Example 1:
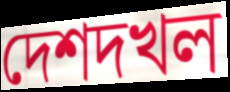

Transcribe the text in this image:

দেশদখল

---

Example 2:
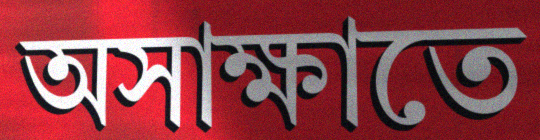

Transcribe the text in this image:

অসাক্ষাতে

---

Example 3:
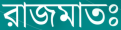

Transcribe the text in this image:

রাজমাতঃ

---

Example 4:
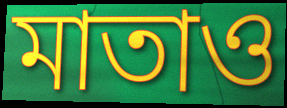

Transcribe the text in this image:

মাতাও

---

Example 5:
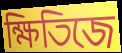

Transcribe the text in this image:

ক্ষিতিজে